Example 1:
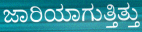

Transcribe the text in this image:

ಜಾರಿಯಾಗುತ್ತಿತ್ತು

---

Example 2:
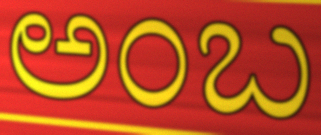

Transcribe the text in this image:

ಅಂಬ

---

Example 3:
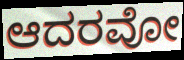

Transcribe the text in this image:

ಆದರವೋ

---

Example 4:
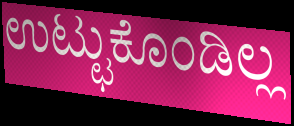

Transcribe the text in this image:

ಉಟ್ಟುಕೊಂಡಿಲ್ಲ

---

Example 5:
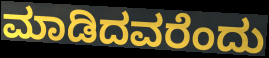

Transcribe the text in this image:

ಮಾಡಿದವರೆಂದು